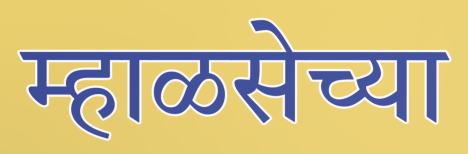
म्हाळसेच्या